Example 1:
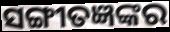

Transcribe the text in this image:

ସଙ୍ଗୀତଜ୍ଞଙ୍କର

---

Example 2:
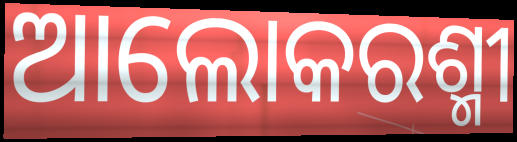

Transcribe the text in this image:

ଆଲୋକରଶ୍ମୀ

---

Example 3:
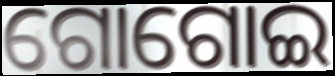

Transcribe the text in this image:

ଗୋଗୋଇ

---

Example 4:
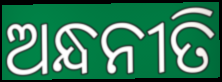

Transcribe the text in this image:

ଅନ୍ଧନୀତି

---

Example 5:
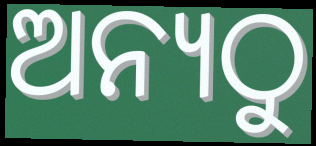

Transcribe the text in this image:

ଅନ୍ୟଠୁ